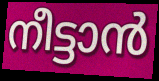
നീട്ടാൻ